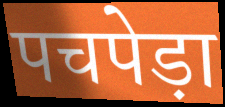
पचपेड़ा